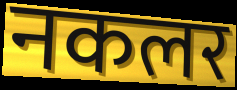
नकलर